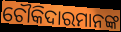
ଚୌକିଦାରମାନଙ୍କ